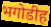
भगोडीह